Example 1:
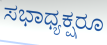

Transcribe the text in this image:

ಸಭಾಧ್ಯಕ್ಷರೂ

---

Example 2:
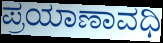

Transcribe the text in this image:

ಪ್ರಯಾಣಾವಧಿ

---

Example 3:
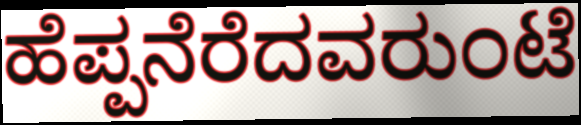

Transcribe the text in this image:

ಹೆಪ್ಪನೆರೆದವರುಂಟೆ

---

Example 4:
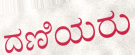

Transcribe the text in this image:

ದಣಿಯರು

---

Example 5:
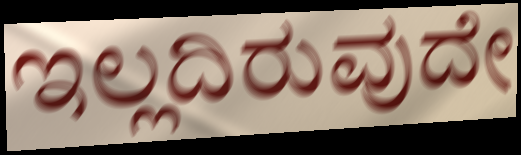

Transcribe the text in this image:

ಇಲ್ಲದಿರುವುದೇ